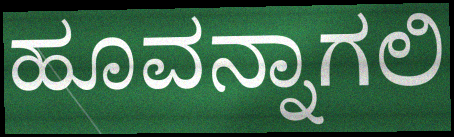
ಹೂವನ್ನಾಗಲಿ